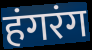
हंगरंग